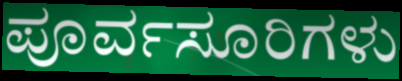
ಪೂರ್ವಸೂರಿಗಳು